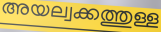
അയല്വക്കത്തുള്ള